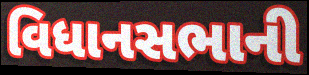
વિધાનસભાની